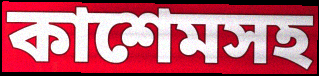
কাশেমসহ